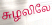
சுழலிலே